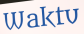
Waktu